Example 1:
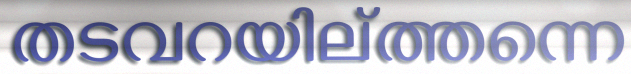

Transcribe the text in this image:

തടവറയില്ത്തന്നെ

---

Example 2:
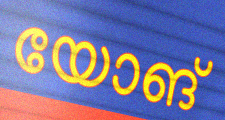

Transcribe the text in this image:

യോങ്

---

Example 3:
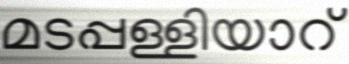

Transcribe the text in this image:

മടപ്പള്ളിയാറ്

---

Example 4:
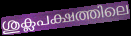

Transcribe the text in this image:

ശുക്ലപക്ഷത്തിലെ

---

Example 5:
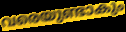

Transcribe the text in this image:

വരെയുണ്ടാകും